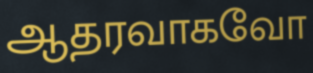
ஆதரவாகவோ